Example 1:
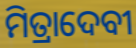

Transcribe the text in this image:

ମିତ୍ରାଦେବୀ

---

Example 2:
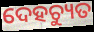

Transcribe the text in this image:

ଦେହଚ୍ୟୁତ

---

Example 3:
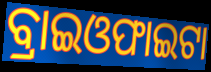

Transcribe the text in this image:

ବ୍ରାଇଓଫାଇଟା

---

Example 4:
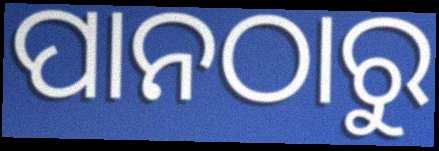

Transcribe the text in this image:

ପାନଠାରୁ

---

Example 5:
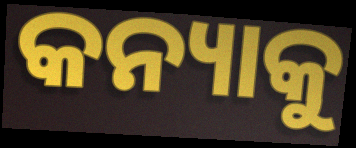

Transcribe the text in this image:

କନ୍ୟାକୁ